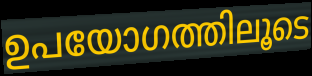
ഉപയോഗത്തിലൂടെ